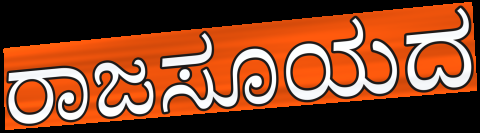
ರಾಜಸೂಯದ